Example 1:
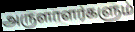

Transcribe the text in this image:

அருளாளர்களும்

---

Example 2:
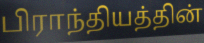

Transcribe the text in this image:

பிராந்தியத்தின்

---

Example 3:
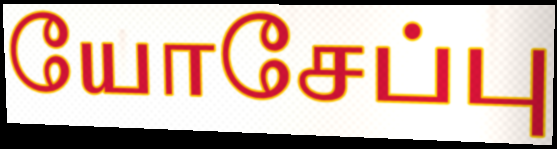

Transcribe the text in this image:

யோசேப்பு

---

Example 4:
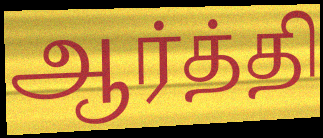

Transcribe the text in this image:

ஆர்த்தி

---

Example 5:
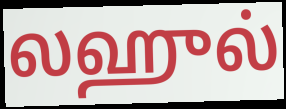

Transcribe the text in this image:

லஹுல்